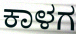
ಕಾಳಗ